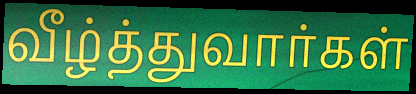
வீழ்த்துவார்கள்